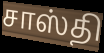
சாஸ்தி